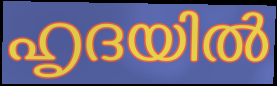
ഹൃദയിൽ